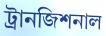
ট্রানজিশনাল